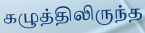
கழுத்திலிருந்த